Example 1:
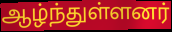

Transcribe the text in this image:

ஆழ்ந்துள்ளனர்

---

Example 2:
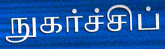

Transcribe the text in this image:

நுகர்ச்சிப்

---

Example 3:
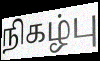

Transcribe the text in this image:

நிகழ்பு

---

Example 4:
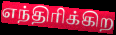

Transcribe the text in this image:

எந்திரிக்கிற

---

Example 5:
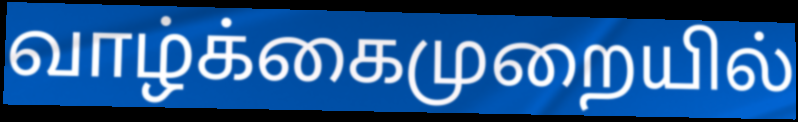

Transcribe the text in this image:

வாழ்க்கைமுறையில்